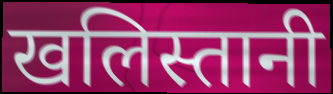
खलिस्तानी